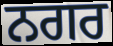
ਨਗਰ